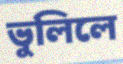
ভুলিলে